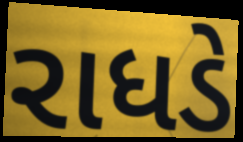
રાધડે